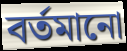
বৰ্তমানো